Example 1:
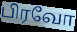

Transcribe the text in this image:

பிரவோ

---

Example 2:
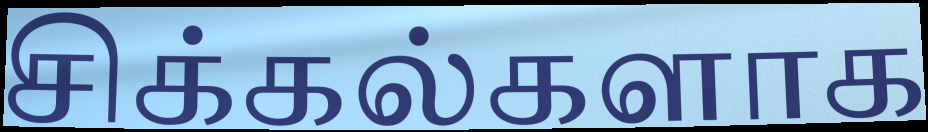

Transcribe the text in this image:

சிக்கல்களாக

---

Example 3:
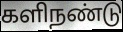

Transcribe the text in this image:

களிநண்டு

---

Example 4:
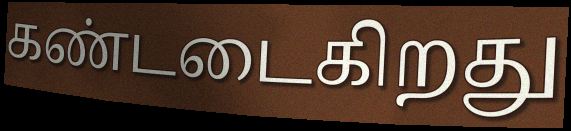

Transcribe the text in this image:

கண்டடைகிறது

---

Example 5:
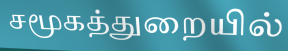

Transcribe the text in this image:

சமூகத்துறையில்